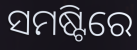
ସମଷ୍ଟିରେ